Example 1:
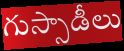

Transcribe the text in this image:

గుస్సాడీలు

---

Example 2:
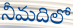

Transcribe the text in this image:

నీమదిలో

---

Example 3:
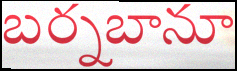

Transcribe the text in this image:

బర్నబానూ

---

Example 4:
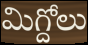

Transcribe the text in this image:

మిగ్దోలు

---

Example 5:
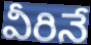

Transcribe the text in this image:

వీరినే